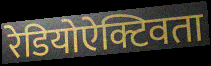
रेडियोऐक्टिवता